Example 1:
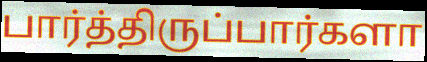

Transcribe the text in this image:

பார்த்திருப்பார்களா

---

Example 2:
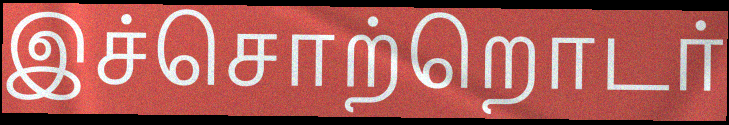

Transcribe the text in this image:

இச்சொற்றொடர்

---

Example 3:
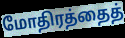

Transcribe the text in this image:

மோதிரத்தைத்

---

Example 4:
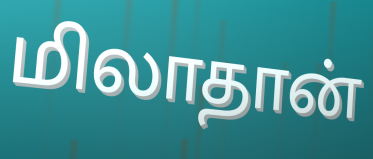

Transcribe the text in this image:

மிலாதான்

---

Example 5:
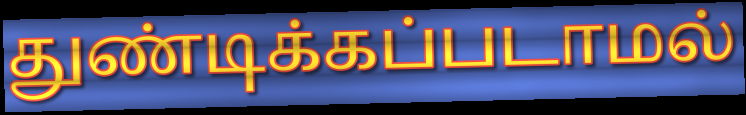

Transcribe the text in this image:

துண்டிக்கப்படாமல்